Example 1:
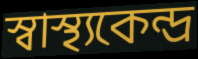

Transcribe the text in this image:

স্বাস্থ্যকেন্দ্ৰ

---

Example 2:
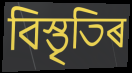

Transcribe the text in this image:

বিস্তৃতিৰ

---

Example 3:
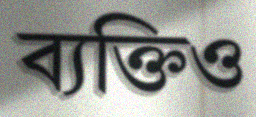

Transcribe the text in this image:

ব্যক্তিও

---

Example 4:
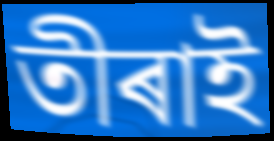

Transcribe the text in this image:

তীৰাই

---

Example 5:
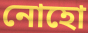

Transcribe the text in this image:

নোহো